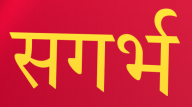
सगर्भ